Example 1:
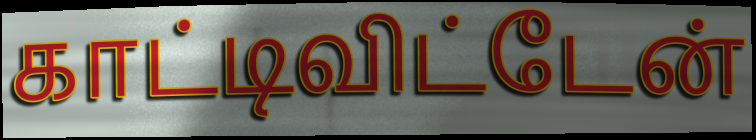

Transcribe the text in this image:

காட்டிவிட்டேன்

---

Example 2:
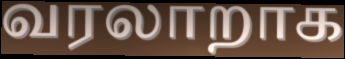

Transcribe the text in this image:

வரலாறாக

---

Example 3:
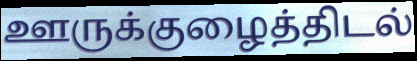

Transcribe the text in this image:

ஊருக்குழைத்திடல்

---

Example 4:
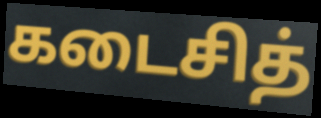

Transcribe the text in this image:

கடைசித்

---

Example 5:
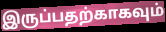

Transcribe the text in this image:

இருப்பதற்காகவும்